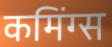
कमिंग्स